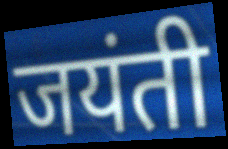
जयंती